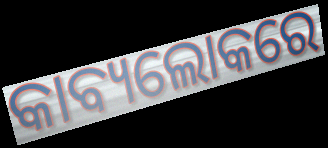
କାବ୍ୟଲୋକରେ